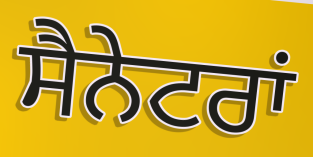
ਸੈਨੇਟਰਾਂ